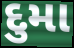
દુમા